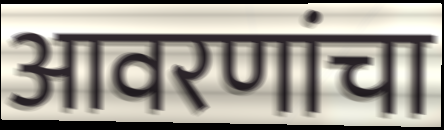
आवरणांचा